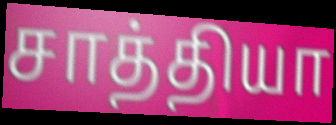
சாத்தியா